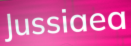
Jussiaea